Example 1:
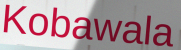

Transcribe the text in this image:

Kobawala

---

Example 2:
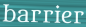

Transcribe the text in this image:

barrier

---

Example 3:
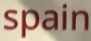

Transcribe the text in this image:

spain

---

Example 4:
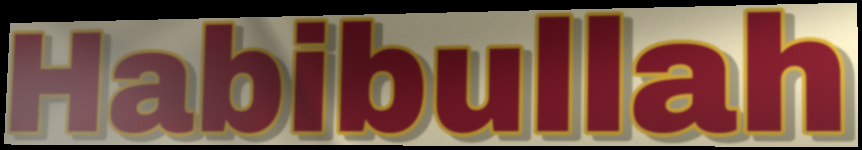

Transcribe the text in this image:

Habibullah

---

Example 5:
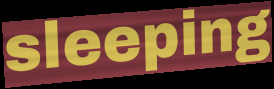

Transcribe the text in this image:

sleeping